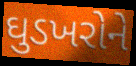
ઘુડખરોને